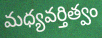
మధ్యవర్తిత్వం